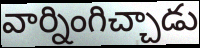
వార్నింగిచ్చాడు